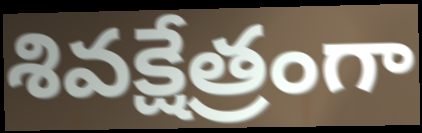
శివక్షేత్రంగా